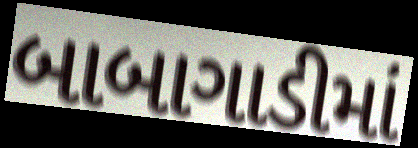
બાબાગાડીમાં